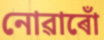
নোৱাৰোঁ